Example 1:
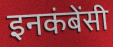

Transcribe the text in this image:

इनकंबेंसी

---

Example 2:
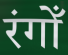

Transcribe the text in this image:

रंगोँ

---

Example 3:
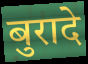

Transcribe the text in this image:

बुरादे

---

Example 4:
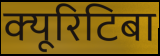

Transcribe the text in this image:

क्यूरिटिबा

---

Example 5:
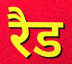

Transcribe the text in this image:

रैड